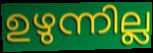
ഉഴുന്നില്ല